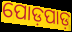
ପୋଡ଼ପାଡ଼